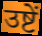
उष्टें